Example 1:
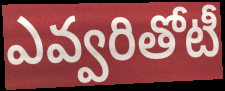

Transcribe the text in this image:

ఎవ్వరితోటీ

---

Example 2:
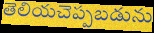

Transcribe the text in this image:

తెలియచెప్పబడును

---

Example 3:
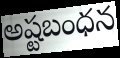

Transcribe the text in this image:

అష్టబంధన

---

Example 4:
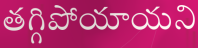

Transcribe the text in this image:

తగ్గిపోయాయని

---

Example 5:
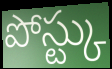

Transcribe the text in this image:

పోస్ట్కు